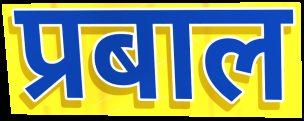
प्रबाल